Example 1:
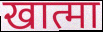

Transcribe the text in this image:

खात्मा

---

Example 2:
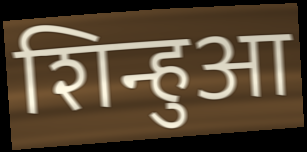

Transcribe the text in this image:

शिन्हुआ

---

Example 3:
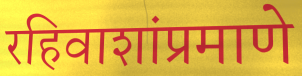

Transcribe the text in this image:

रहिवाशांप्रमाणे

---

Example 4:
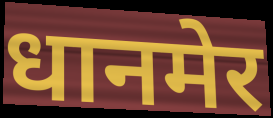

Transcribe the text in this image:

धानमेर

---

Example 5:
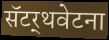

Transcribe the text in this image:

सॅटर्थवेटना